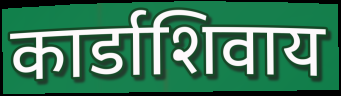
कार्डाशिवाय